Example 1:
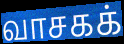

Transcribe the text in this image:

வாசகக்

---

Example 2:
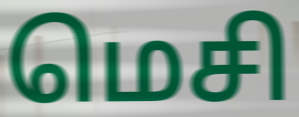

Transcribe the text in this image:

மெசி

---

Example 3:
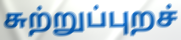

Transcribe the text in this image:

சுற்றுப்புறச்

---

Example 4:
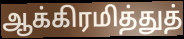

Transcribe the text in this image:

ஆக்கிரமித்துத்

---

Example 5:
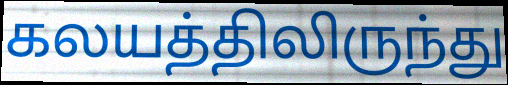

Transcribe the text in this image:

கலயத்திலிருந்து